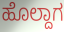
ಹೊಲ್ದಾಗ